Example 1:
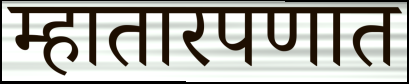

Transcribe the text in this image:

म्हातारपणात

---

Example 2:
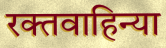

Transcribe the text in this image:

रक्तवाहिन्या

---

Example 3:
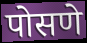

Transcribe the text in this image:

पोसणे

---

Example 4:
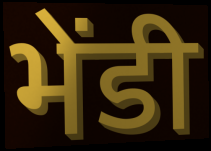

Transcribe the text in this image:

भेंडी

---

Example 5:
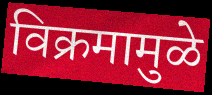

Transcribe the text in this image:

विक्रमामुळे